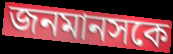
জনমানসকে